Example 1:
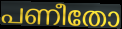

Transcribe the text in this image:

പണീതോ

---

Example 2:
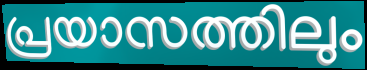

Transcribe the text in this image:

പ്രയാസത്തിലും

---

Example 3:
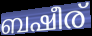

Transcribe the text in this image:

ബഷീര്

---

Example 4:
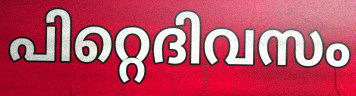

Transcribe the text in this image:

പിറ്റെദിവസം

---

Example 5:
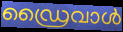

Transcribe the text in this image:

ഡ്രൈവാൾ